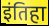
इंतिहा